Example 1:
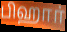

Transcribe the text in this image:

பிஹார்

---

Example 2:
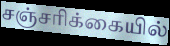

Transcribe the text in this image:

சஞ்சரிக்கையில்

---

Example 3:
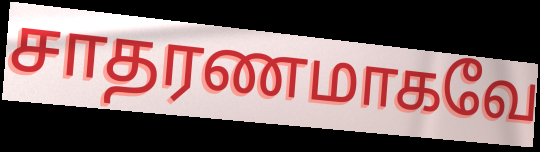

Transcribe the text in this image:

சாதரணமாகவே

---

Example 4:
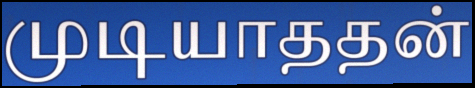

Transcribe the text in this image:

முடியாததன்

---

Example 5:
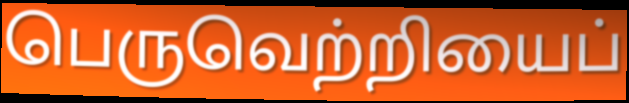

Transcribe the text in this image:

பெருவெற்றியைப்